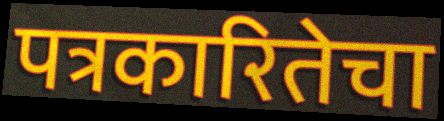
पत्रकारितेचा